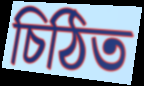
চিঠিত